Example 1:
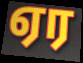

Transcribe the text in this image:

ஏர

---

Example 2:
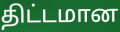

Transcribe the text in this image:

திட்டமான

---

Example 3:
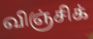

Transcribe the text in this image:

விஞ்சிக்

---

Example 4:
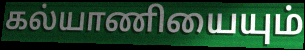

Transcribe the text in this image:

கல்யாணியையும்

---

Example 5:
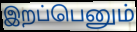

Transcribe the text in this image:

இறப்பெனும்